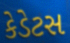
કેડેટસ